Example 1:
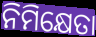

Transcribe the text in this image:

ନିମିକ୍ଷେତା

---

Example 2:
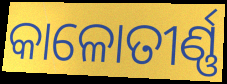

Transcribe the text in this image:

କାଳୋତୀର୍ଣ୍ଣ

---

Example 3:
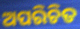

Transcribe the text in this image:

ଅପରିଚିତ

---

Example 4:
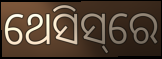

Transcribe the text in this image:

ଥେସିସ୍‌ରେ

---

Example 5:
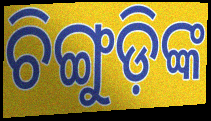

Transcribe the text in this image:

ଚିଙ୍ଗୁଡ଼ିଙ୍କ